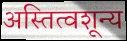
अस्तित्वशून्य